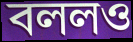
বললও